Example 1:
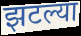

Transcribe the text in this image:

झटल्या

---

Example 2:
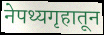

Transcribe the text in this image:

नेपथ्यगृहातून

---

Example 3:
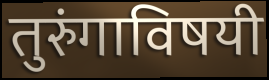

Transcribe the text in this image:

तुरुंगाविषयी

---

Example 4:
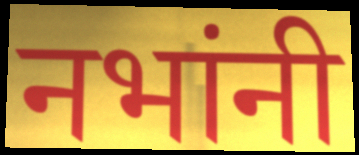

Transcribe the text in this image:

नभांनी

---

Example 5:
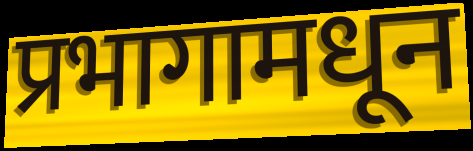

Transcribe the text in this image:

प्रभागामधून